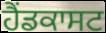
ਹੈਂਡਕਾਸਟ